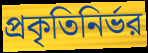
প্রকৃতিনির্ভর